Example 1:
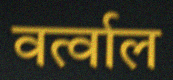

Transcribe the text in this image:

वर्त्वाल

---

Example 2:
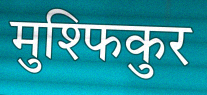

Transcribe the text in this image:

मुश्फिकुर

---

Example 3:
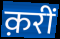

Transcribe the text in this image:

क़रीं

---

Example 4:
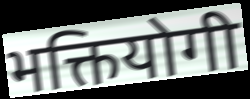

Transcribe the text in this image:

भक्तियोगी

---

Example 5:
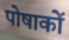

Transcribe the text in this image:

पोषाकों